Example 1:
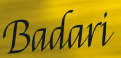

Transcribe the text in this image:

Badari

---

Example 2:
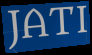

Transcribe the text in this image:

JATI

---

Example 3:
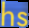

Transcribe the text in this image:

hs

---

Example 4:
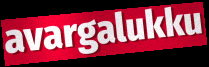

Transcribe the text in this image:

avargalukku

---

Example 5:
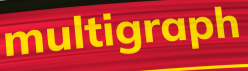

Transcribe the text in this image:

multigraph